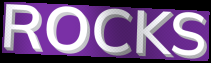
ROCKS